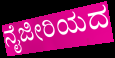
ನೈಜೀರಿಯದ